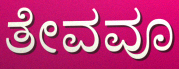
ತೇವವೂ